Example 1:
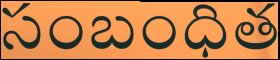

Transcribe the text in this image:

సంబంధిత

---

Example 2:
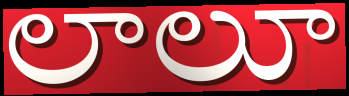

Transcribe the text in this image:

లాలూ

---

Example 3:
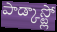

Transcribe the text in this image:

పాడ్కాస్ట్లో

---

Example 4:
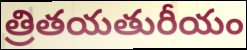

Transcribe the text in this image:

త్రితయతురీయం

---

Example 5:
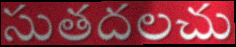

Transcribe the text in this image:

సుతదలచు